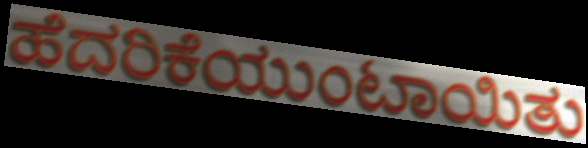
ಹೆದರಿಕೆಯುಂಟಾಯಿತು